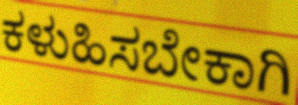
ಕಳುಹಿಸಬೇಕಾಗಿ